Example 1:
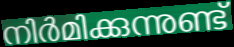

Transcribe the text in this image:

നിർമിക്കുന്നുണ്ട്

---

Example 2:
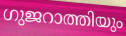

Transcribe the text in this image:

ഗുജറാത്തിയും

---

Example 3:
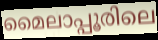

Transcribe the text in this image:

മൈലാപ്പൂരിലെ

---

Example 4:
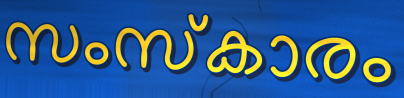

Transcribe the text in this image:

സംസ്കാരം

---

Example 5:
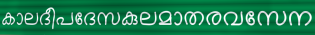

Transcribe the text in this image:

കാലദീപദേസകുലമാതരവസേന